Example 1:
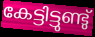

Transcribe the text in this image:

കേട്ടിട്ടുണ്ടു്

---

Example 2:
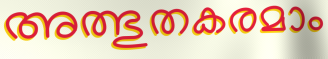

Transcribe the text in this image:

അത്ഭുതകരമാം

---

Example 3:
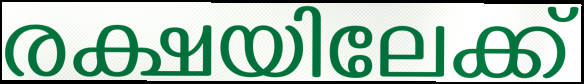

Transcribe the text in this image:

രക്ഷയിലേക്ക്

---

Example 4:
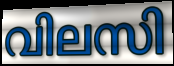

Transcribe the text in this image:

വിലസി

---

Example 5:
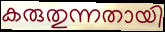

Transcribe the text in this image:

കരുതുന്നതായി